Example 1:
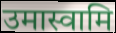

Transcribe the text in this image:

उमास्वामि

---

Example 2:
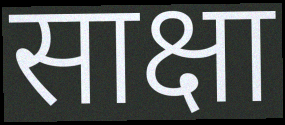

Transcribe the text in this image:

साक्षा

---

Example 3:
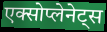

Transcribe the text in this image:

एक्सोप्लेनेट्स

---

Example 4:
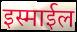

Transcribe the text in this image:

इस्माईल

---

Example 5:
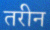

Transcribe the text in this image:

तरीन